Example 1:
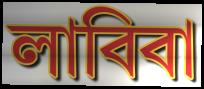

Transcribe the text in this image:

লাবিবা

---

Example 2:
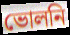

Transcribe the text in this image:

ভোলনি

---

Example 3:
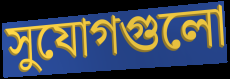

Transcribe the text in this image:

সুযোগগুলো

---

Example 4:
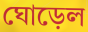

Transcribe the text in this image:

ঘোড়েল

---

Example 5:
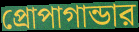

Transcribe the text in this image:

প্রোপাগান্ডার